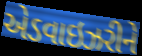
એડવાઇઝરીને